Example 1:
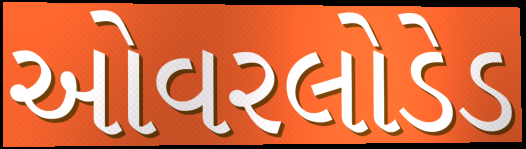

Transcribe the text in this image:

ઓવરલોડેડ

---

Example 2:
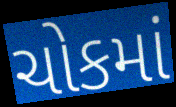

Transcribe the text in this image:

ચોકમાં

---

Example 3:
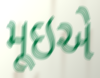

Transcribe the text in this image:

મૂઇએ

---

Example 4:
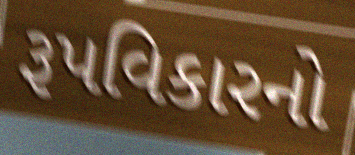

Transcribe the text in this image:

રૂપવિકારનો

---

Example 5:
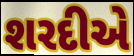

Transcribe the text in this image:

શરદીએ